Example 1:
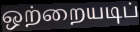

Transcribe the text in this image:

ஒற்றையடிப்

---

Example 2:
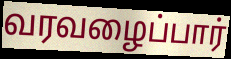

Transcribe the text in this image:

வரவழைப்பார்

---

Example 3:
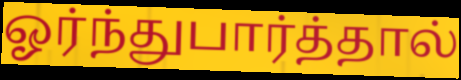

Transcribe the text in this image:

ஓர்ந்துபார்த்தால்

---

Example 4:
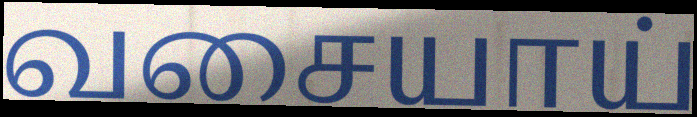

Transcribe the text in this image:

வசையாய்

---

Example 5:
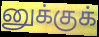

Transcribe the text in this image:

னுக்குக்